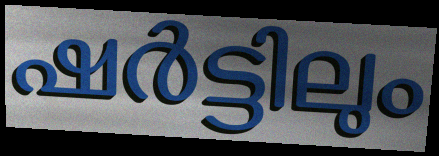
ഷർട്ടിലും